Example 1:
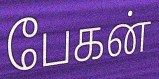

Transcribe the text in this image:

பேகன்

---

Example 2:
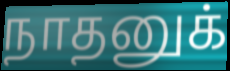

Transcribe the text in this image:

நாதனுக்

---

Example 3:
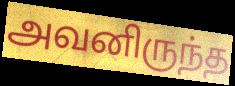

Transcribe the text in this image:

அவனிருந்த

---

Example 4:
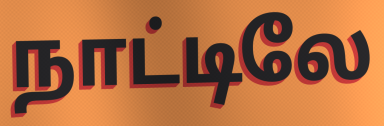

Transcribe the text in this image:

நாட்டிலே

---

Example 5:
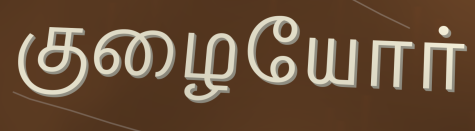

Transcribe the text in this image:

குழையோர்